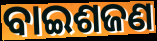
ବାଇଶଜଣ